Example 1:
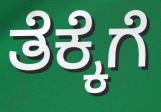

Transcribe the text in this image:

ತೆಕ್ಕೆಗೆ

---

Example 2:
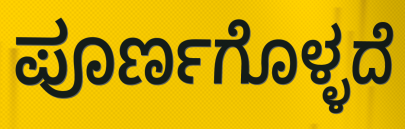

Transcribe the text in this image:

ಪೂರ್ಣಗೊಳ್ಳದೆ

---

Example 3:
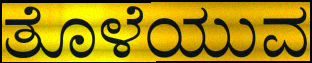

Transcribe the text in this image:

ತೊಳೆಯುವ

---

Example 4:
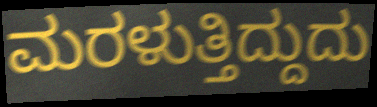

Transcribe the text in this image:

ಮರಳುತ್ತಿದ್ದುದು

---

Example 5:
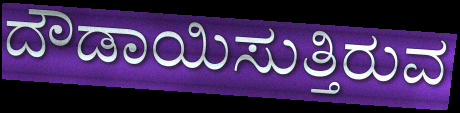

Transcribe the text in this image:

ದೌಡಾಯಿಸುತ್ತಿರುವ